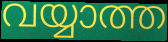
വയ്യാത്ത